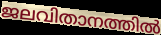
ജലവിതാനത്തിൽ